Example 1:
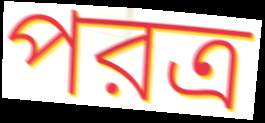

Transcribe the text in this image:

পরত্র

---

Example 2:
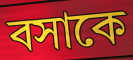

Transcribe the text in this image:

বসাকে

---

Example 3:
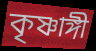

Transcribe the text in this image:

কৃষ্ণাঙ্গী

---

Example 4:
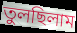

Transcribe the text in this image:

তুলছিলাম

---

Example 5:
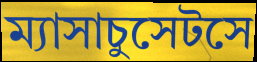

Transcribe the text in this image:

ম্যাসাচুসেটসে